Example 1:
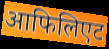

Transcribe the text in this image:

आफिलिएट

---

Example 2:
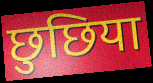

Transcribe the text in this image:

छुछिया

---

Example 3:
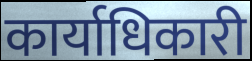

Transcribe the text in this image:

कार्याधिकारी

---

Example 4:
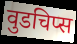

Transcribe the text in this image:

वुडचिप्स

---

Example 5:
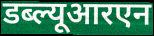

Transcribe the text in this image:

डब्ल्यूआरएन